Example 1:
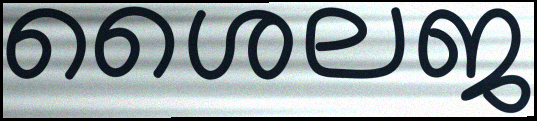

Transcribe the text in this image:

ശൈലജ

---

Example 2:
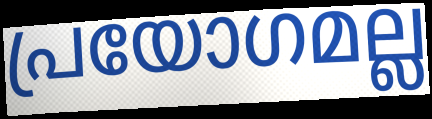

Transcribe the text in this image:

പ്രയോഗമല്ല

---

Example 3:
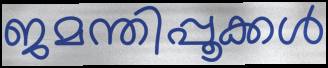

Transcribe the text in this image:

ജമന്തിപ്പൂക്കൾ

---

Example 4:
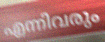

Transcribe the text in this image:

എന്നിവരും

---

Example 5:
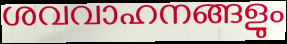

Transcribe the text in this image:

ശവവാഹനങ്ങളും